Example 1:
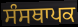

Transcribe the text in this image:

ਸੰਸਥਾਪਕ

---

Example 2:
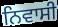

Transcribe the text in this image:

ਨਿਵਾਸੀ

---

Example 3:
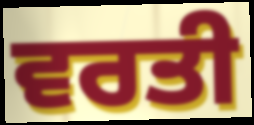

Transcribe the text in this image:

ਵਰਤੀ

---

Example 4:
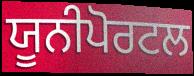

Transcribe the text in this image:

ਯੂਨੀਪੋਰਟਲ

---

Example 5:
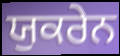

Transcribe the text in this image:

ਯੁਕਰੇਨ